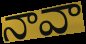
నావా